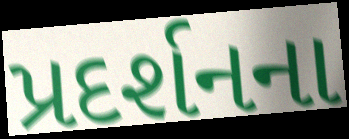
પ્રદર્શનના